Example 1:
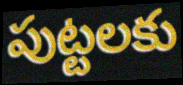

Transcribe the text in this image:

పుట్టలకు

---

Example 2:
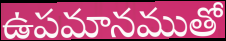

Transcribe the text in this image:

ఉపమానముతో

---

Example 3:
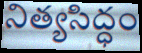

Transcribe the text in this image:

నిత్యసిద్ధం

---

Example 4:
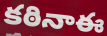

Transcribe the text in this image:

కఠినాఈ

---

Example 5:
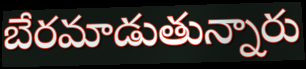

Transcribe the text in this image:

బేరమాడుతున్నారు